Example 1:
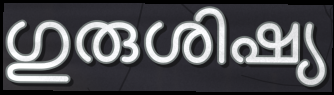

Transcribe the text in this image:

ഗുരുശിഷ്യ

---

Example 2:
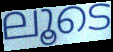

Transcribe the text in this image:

ലൂടെ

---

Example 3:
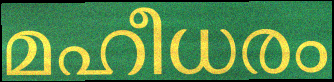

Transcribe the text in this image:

മഹീധരം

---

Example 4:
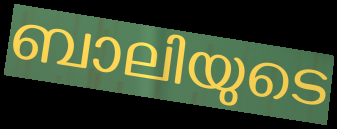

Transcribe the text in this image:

ബാലിയുടെ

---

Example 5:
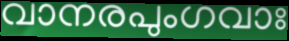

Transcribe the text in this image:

വാനരപുംഗവാഃ